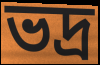
ভদ্ৰ